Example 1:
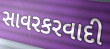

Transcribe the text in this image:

સાવરકરવાદી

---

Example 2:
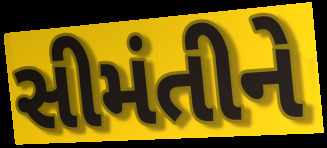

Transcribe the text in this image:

સીમંતીને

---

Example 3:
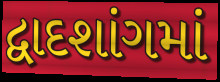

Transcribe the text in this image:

દ્વાદશાંગમાં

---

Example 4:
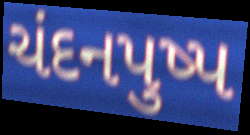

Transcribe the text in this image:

ચંદનપુષ્પ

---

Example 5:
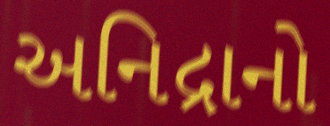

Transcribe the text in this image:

અનિદ્રાનો